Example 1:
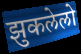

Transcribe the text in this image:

झुकलेलो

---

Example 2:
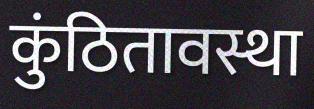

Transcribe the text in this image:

कुंठितावस्था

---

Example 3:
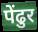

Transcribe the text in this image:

पेंढुर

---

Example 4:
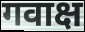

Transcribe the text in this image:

गवाक्ष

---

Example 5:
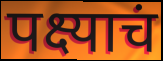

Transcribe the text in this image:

पक्ष्याचं